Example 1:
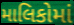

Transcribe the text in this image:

માલિકોમાં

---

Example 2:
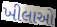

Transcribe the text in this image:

ખીલાઓ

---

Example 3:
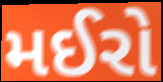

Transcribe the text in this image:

મઈરો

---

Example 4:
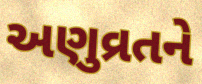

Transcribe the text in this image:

અણુવ્રતને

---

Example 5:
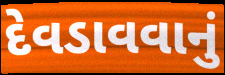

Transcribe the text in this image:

દેવડાવવાનું